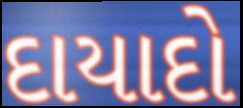
દાયાદો